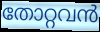
തോറ്റവൻ